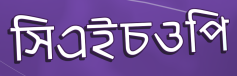
সিএইচওপি